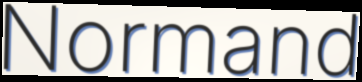
Normand